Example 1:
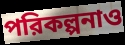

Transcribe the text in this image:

পরিকল্পনাও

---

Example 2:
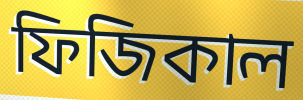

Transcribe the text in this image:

ফিজিকাল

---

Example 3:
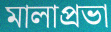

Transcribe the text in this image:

মালাপ্রভা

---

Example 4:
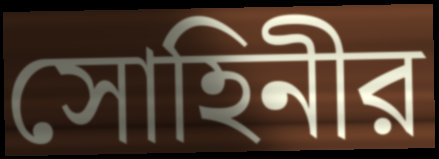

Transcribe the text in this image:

সোহিনীর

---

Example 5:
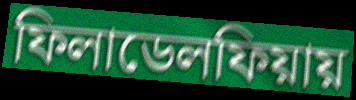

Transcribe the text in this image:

ফিলাডেলফিয়ায়